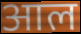
आल